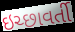
ઇચ્છાવર્તી